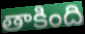
తాకింది